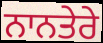
ਨਾਨਤੇਰੇ